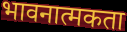
भावनात्मकता